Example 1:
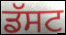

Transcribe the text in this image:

ਡੱਸਟ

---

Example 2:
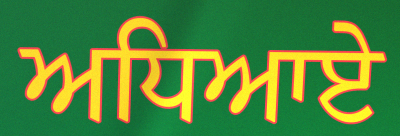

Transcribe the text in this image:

ਅਧਿਆਏ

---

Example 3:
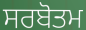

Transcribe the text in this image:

ਸਰਬੋਤਮ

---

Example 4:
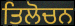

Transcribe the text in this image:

ਤਿਲੋਚਨ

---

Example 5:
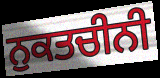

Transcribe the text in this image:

ਨੁਕਤਚੀਨੀ